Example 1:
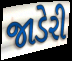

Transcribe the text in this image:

જાડેરી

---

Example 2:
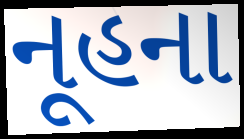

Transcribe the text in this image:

નૂહના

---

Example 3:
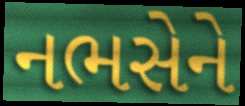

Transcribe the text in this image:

નભસેને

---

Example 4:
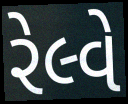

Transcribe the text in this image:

રેલ્વે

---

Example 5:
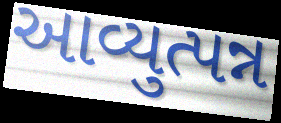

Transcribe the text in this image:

આવ્યુત્પન્ન